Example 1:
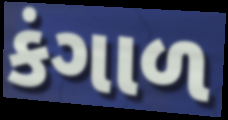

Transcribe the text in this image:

કંગાળ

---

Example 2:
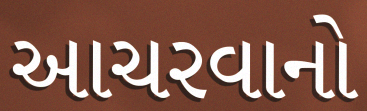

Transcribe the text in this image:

આચરવાનો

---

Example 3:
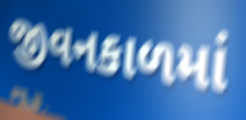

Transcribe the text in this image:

જીવનકાળમાં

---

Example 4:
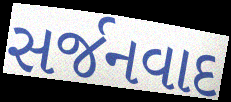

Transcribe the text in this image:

સર્જનવાદ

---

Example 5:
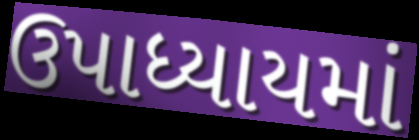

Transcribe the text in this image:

ઉપાધ્યાયમાં